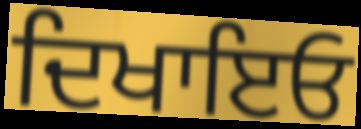
ਦਿਖਾਇਓ